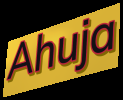
Ahuja